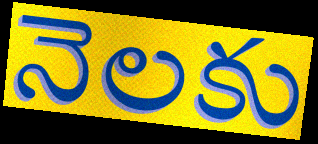
నెలకు